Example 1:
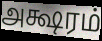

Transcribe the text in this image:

அக்ஷரம்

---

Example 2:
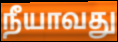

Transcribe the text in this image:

நீயாவது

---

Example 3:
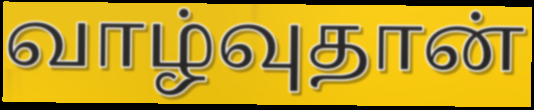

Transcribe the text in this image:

வாழ்வுதான்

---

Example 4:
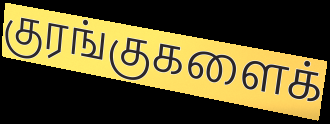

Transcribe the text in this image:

குரங்குகளைக்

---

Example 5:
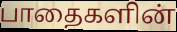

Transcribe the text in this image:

பாதைகளின்